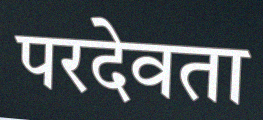
परदेवता